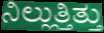
ನಿಲ್ಲುತ್ತಿತ್ತು